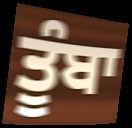
ਤੂੰਬਾ